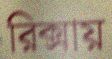
রিক্সায়